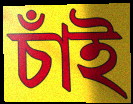
চাঁই